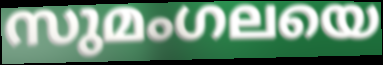
സുമംഗലയെ